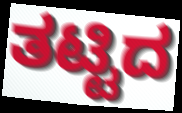
ತಟ್ಟಿದ